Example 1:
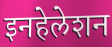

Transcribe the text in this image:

इनहेलेशन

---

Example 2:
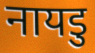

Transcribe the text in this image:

नायडु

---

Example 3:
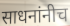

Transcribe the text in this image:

साधनांनीच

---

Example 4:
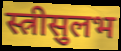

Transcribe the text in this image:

स्त्रीसुलभ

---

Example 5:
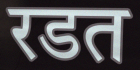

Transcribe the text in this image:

रडत